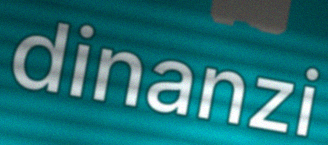
dinanzi